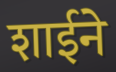
शाईने